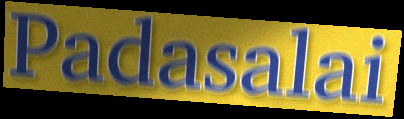
Padasalai